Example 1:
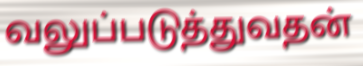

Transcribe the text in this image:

வலுப்படுத்துவதன்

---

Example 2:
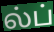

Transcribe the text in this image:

ல்ப்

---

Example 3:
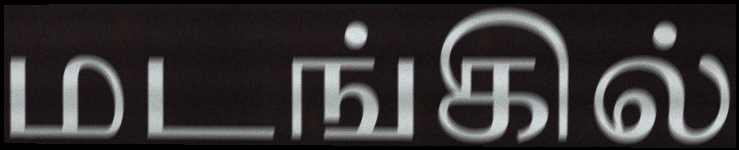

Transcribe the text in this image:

மடங்கில்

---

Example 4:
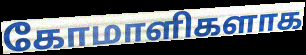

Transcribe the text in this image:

கோமாளிகளாக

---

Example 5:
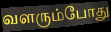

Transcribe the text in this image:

வளரும்போது